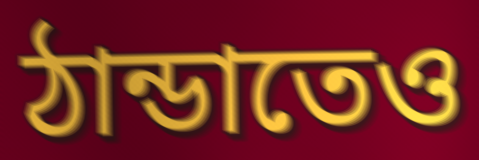
ঠান্ডাতেও